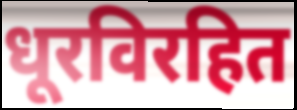
धूरविरहित